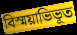
বিস্ময়াভিভূত